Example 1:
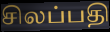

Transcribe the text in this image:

சிலப்பதி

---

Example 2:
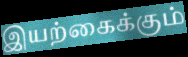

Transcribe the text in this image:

இயற்கைக்கும்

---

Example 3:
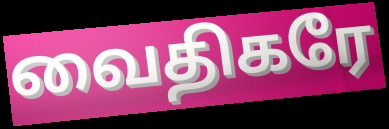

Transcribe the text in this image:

வைதிகரே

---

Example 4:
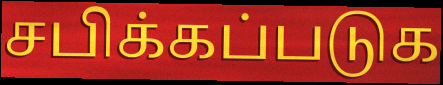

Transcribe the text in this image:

சபிக்கப்படுக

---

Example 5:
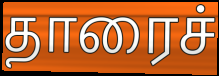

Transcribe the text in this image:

தாரைச்